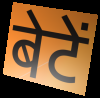
बेटें